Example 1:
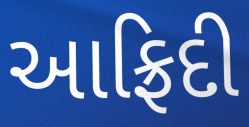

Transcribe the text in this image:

આફ્રિદી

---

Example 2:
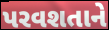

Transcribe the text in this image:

પરવશતાને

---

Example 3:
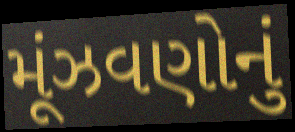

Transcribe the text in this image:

મૂંઝવણોનું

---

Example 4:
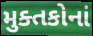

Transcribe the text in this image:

મુક્તકોનાં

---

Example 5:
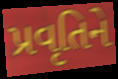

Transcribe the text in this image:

પ્રવૃતિને